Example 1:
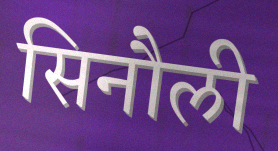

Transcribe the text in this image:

सिनौली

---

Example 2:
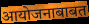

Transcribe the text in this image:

आयोजनाबाबत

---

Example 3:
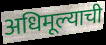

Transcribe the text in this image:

अधिमूल्याची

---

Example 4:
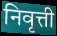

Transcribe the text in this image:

निवृत्ती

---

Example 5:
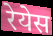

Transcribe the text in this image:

रेयेस